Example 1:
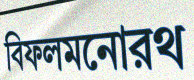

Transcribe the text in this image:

বিফলমনোরথ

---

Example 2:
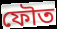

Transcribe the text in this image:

ফৌত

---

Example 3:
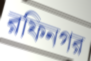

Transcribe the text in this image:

রফিনগর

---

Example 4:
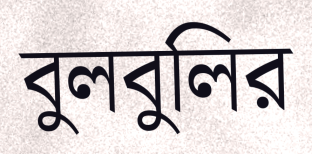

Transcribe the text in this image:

বুলবুলির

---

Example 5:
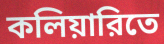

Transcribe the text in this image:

কলিয়ারিতে